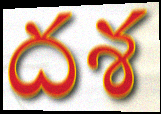
దశ